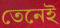
তেনেই